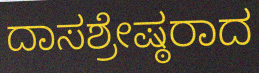
ದಾಸಶ್ರೇಷ್ಠರಾದ